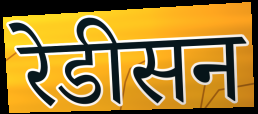
रेडीसन